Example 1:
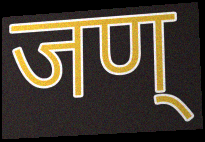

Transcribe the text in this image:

जण्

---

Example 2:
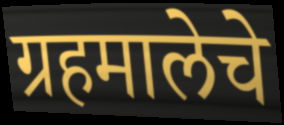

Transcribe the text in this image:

ग्रहमालेचे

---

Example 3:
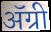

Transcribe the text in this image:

ॲग्री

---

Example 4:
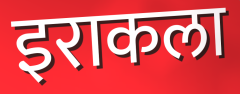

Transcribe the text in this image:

इराकला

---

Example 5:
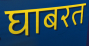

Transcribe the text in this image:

घाबरत